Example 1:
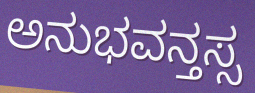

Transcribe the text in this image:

ಅನುಭವನ್ತಸ್ಸ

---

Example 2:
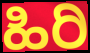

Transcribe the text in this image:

ಹಿರಿ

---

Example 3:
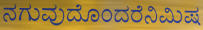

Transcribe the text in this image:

ನಗುವುದೊಂದರೆನಿಮಿಷ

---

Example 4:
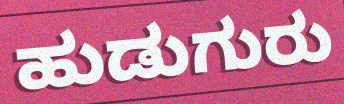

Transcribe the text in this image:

ಹುಡುಗುರು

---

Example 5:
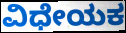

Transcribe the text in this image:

ವಿಧೇಯಕ